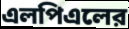
এলপিএলের